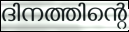
ദിനത്തിന്റെ